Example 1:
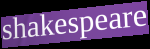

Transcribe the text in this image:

shakespeare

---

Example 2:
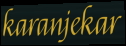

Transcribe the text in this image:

karanjekar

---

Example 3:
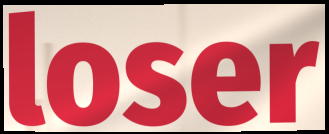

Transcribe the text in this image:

loser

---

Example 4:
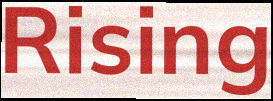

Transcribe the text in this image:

Rising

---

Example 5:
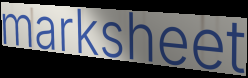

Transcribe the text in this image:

marksheet